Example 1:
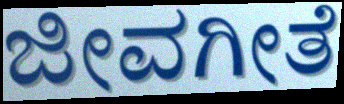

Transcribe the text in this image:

ಜೀವಗೀತೆ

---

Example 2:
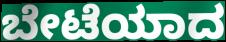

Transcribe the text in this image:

ಬೇಟೆಯಾದ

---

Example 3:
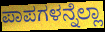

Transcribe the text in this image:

ಪಾಪಗಳನ್ನೆಲ್ಲಾ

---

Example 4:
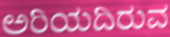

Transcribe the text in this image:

ಅರಿಯದಿರುವ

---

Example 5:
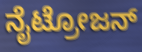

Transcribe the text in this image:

ನೈಟ್ರೋಜನ್